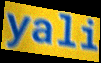
yali